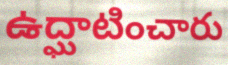
ఉద్ఘాటించారు